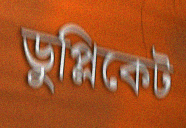
ডুপ্লিকেট